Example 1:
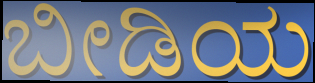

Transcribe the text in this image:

ಬೀಡಿಯ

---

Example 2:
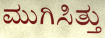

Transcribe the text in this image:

ಮುಗಿಸಿತ್ತು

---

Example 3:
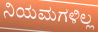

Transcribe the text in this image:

ನಿಯಮಗಳಿಲ್ಲ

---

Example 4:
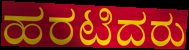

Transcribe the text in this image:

ಹರಟಿದರು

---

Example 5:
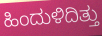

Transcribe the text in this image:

ಹಿಂದುಳಿದಿತ್ತು